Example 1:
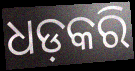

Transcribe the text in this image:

ଧଡ଼କରି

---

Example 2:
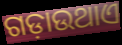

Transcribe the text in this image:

ଗଡ଼ାଉଥାଏ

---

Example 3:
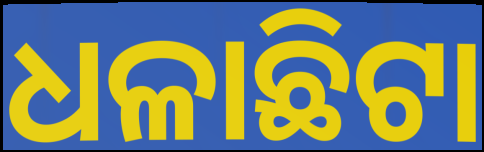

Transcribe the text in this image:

ଧଳାଛିଟା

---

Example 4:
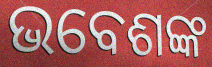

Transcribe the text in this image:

ଭବେଶଙ୍କ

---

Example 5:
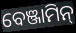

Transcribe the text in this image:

ବେଞ୍ଜାମିନ୍